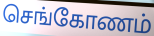
செங்கோணம்